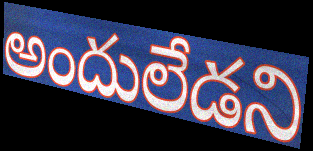
అందులేడని